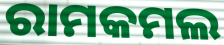
ରାମକମଲ